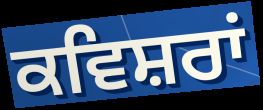
ਕਵਿਸ਼ਰਾਂ